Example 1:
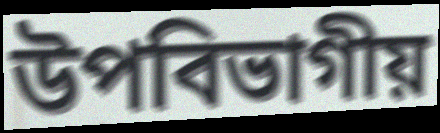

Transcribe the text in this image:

উপবিভাগীয়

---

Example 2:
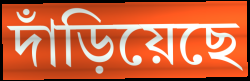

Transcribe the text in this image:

দাঁড়িয়েছে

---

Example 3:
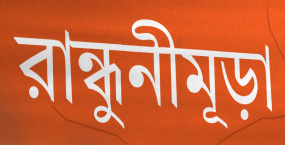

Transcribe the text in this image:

রান্ধুনীমূড়া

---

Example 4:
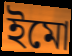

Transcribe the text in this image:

ইমো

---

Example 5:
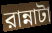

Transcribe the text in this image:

রান্নাটা